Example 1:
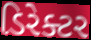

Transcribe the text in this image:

ડિરેક્ટર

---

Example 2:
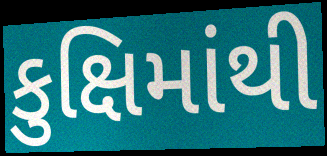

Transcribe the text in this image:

કુક્ષિમાંથી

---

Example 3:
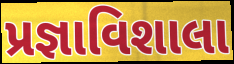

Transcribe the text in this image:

પ્રજ્ઞાવિશાલા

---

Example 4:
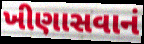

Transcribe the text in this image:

ખીણાસવાનં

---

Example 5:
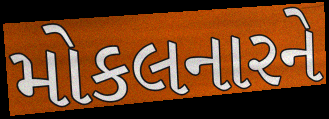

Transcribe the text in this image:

મોકલનારને